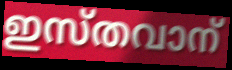
ഇസ്തവാന്